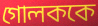
গোলককে